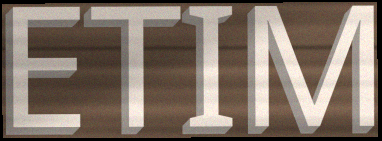
ETIM